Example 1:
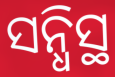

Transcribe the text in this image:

ସନ୍ଧିସ୍ଥ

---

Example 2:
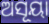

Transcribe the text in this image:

ଅସୂୟା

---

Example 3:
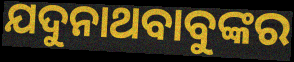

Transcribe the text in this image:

ଯଦୁନାଥବାବୁଙ୍କର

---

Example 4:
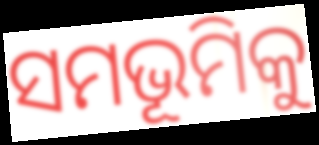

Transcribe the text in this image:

ସମଭୂମିକୁ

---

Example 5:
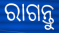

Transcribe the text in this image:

ରାଗନ୍ତୁ